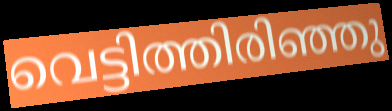
വെട്ടിത്തിരിഞ്ഞു